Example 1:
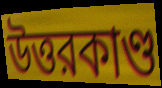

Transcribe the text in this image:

উত্তরকাণ্ড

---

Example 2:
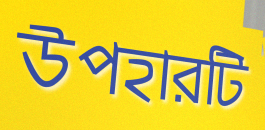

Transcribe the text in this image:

উপহারটি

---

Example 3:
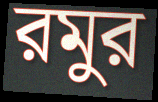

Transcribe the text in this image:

রমুর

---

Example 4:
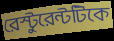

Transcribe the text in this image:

রেস্টুরেন্টটিকে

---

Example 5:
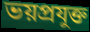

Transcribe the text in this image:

ভয়প্রযুক্ত